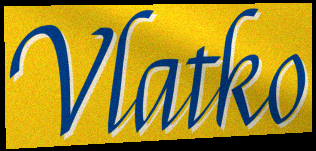
Vlatko